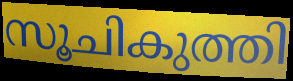
സൂചികുത്തി